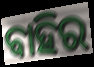
ବାହିର